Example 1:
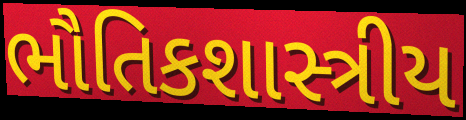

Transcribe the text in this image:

ભૌતિકશાસ્ત્રીય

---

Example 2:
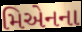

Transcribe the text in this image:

મિએનના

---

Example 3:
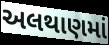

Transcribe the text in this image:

અલથાણમાં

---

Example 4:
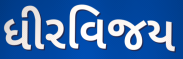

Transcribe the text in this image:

ધીરવિજય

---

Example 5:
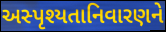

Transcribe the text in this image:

અસ્પૃશ્યતાનિવારણને